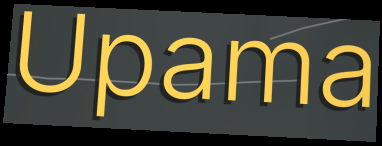
Upama